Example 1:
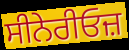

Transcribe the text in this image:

ਸੀਨੇਰੀਓਜ਼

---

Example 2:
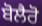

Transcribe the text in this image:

ਬੋਲੈਰੋ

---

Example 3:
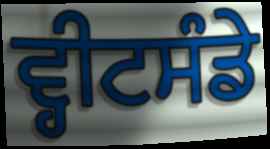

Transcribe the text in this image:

ਵ੍ਹੀਟਸੰਡੇ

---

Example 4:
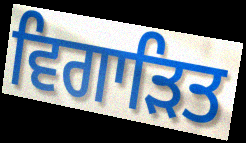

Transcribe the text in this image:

ਵਿਗਾੜਿਤ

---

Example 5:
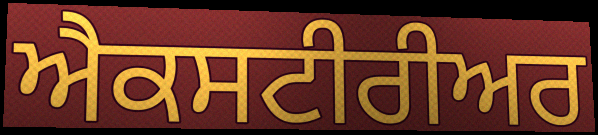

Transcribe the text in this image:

ਐਕਸਟੀਰੀਅਰ